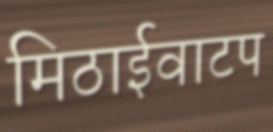
मिठाईवाटप